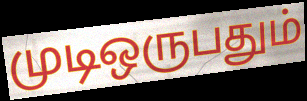
முடிஒருபதும்